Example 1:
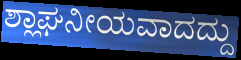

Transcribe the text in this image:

ಶ್ಲಾಘನೀಯವಾದದ್ದು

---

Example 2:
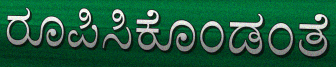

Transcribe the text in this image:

ರೂಪಿಸಿಕೊಂಡಂತೆ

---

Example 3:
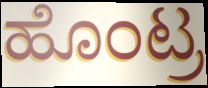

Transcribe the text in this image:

ಹೊಂಟ್ರ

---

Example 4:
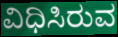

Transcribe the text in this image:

ವಿಧಿಸಿರುವ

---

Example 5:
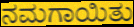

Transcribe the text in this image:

ನಮಗಾಯಿತು